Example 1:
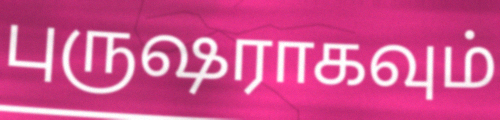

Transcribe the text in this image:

புருஷராகவும்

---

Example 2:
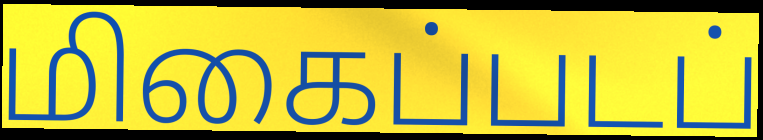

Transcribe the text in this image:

மிகைப்படப்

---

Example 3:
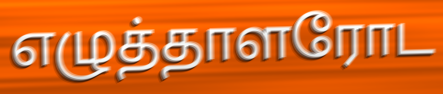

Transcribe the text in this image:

எழுத்தாளரோட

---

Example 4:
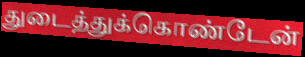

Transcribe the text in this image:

துடைத்துக்கொண்டேன்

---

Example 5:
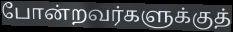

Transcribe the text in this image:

போன்றவர்களுக்குத்